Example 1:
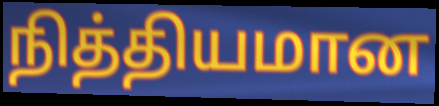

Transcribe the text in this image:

நித்தியமான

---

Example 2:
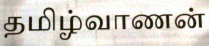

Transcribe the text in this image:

தமிழ்வாணன்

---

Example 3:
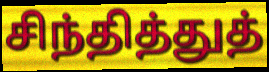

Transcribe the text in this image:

சிந்தித்துத்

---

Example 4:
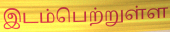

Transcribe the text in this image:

இடம்பெற்றுள்ள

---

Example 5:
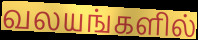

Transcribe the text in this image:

வலயங்களில்